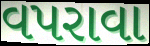
વપરાવા